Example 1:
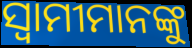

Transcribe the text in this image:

ସ୍ଵାମୀମାନଙ୍କୁ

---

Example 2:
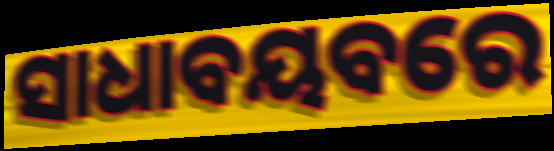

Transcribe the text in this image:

ସାଧାବୟବରେ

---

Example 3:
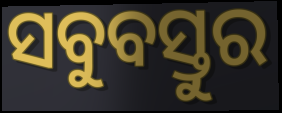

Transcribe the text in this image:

ସବୁବସ୍ତୁର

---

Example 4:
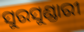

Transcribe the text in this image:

ସୁରସୁଣ୍ଡାରୀ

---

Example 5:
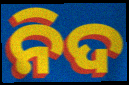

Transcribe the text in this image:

ନିଦ